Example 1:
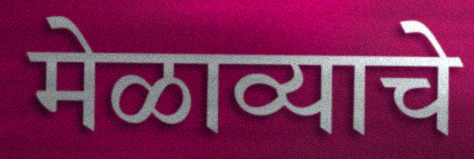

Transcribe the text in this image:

मेळाव्याचे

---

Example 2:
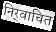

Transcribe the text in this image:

निर्वाचित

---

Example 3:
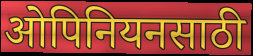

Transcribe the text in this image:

ओपिनियनसाठी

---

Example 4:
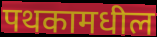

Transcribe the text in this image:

पथकामधील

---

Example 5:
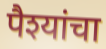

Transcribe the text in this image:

पैश्यांचा